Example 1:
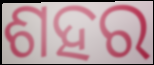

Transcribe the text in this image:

ଶହର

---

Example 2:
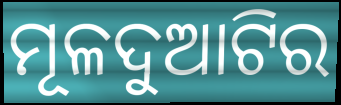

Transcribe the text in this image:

ମୂଳଦୁଆଟିର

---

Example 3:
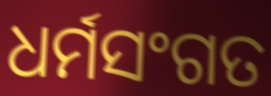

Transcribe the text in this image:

ଧର୍ମସଂଗତ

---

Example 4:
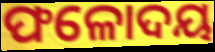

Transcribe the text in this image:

ଫଳୋଦୟ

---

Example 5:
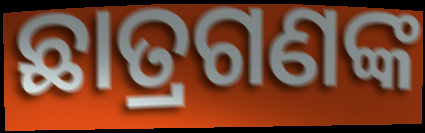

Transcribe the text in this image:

ଛାତ୍ରଗଣଙ୍କ